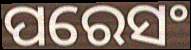
ପରେସଂ